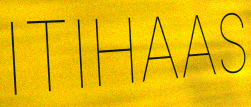
ITIHAAS